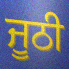
ਜੂਠੀ